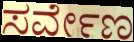
ಸರ್ವೇಣ